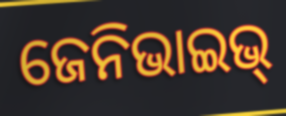
ଜେନିଭାଇଭ୍